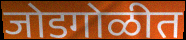
जोडगोळीत